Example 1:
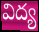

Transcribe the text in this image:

విద్య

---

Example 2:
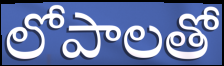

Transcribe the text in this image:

లోపాలతో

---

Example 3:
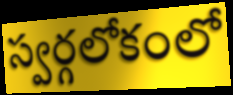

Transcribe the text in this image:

స్వర్గలోకంలో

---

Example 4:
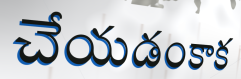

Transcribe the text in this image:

చేయడంకాక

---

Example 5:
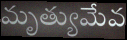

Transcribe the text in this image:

మృత్యుమేవ